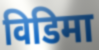
विडिमा